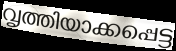
വൃത്തിയാക്കപ്പെട്ട